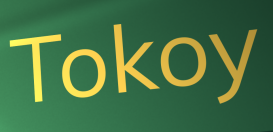
Tokoy